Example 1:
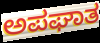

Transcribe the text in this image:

ಅಪಘಾತ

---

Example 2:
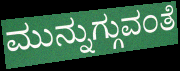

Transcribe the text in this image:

ಮುನ್ನುಗ್ಗುವಂತೆ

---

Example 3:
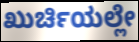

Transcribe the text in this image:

ಖುರ್ಚಿಯಲ್ಲೇ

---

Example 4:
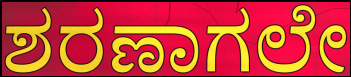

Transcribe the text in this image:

ಶರಣಾಗಲೇ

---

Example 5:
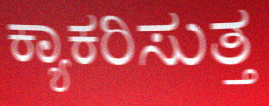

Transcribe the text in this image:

ಕ್ಯಾಕರಿಸುತ್ತ